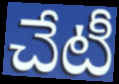
చేటీ